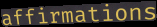
affirmations